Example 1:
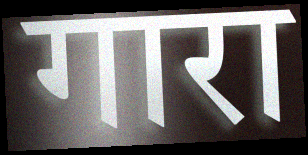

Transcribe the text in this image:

गारा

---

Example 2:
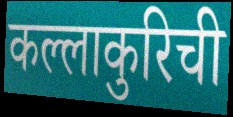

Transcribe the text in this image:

कल्लाकुरिची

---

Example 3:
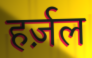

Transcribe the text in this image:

हर्ज़ल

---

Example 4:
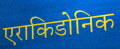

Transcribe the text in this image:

एराकिडोनिक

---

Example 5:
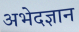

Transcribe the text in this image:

अभेदज्ञान